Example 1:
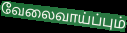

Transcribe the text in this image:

வேலைவாய்ப்பும்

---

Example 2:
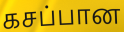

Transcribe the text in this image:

கசப்பான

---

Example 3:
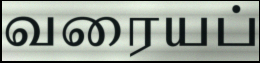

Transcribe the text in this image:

வரையப்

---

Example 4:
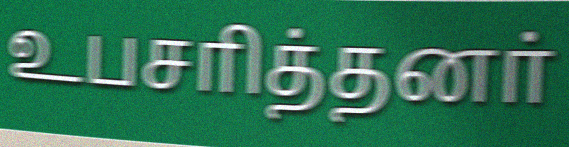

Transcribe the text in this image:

உபசரித்தனர்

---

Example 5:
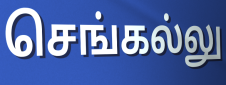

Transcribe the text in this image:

செங்கல்லு